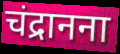
चंद्रानना